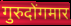
गुरुदोंगमार